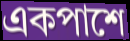
একপাশে